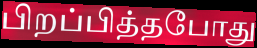
பிறப்பித்தபோது